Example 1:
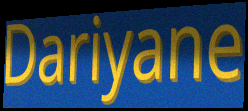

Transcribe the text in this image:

Dariyane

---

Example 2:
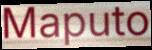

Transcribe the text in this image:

Maputo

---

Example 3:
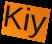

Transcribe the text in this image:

Kiy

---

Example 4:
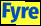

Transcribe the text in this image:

Fyre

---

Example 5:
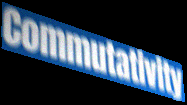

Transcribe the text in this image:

Commutativity